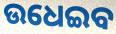
ଉଧେଇବ